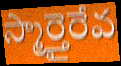
స్మార్తైరేవ